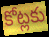
కోట్లకు